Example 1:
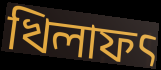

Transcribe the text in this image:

খিলাফৎ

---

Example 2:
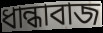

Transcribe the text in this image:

ধান্ধাবাজ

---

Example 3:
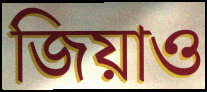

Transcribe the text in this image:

জিয়াও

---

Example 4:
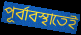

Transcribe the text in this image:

পূর্বাবস্থাতেই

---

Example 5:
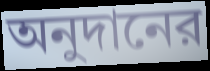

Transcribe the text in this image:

অনুদানের